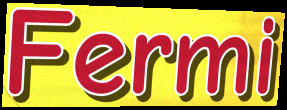
Fermi